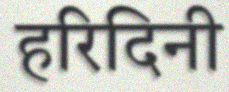
हरिदिनी